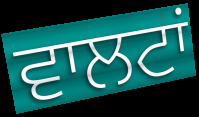
ਵਾਲਟਾਂ